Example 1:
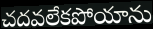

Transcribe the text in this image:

చదవలేకపోయాను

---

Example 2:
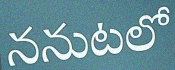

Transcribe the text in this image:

ననుటలో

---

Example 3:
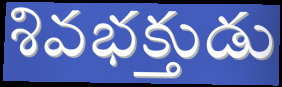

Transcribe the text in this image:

శివభక్తుడు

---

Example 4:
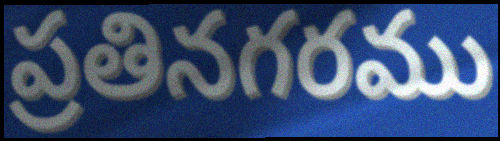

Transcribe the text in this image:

ప్రతినగరము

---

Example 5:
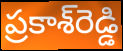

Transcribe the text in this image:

ప్రకాశ్‌రెడ్డి